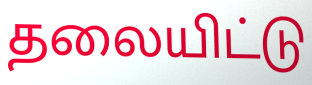
தலையிட்டு